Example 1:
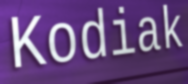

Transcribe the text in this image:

Kodiak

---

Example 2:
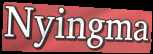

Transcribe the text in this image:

Nyingma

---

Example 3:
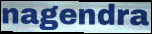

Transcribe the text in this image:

nagendra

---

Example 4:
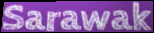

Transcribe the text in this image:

Sarawak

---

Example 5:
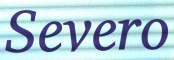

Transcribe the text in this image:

Severo